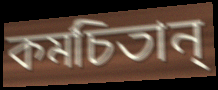
কর্মচিতান্